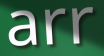
arr